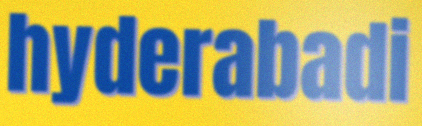
hyderabadi